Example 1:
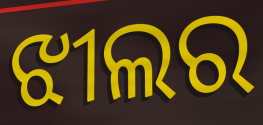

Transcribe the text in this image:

ଝୀଲର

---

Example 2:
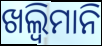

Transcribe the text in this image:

ଖଲ୍ୱିମାନି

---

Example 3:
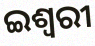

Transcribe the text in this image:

ଇଶ୍ୱରୀ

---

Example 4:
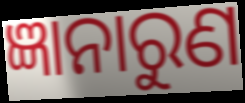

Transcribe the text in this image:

ଜ୍ଞାନାରୁଣ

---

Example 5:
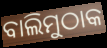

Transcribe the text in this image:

ବାଲିମୁଠାକ